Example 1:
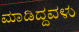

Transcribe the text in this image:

ಮಾಡಿದ್ದವಳು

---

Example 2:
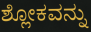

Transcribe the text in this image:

ಶ್ಲೋಕವನ್ನು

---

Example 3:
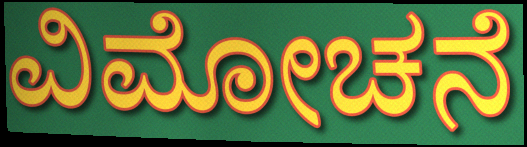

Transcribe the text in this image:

ವಿಮೋಚನೆ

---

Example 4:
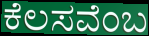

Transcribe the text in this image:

ಕೆಲಸವೆಂಬ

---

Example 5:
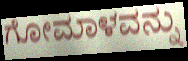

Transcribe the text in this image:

ಗೋಮಾಳವನ್ನು